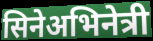
सिनेअभिनेत्री